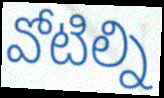
వోటిల్ని